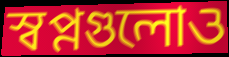
স্বপ্নগুলোও